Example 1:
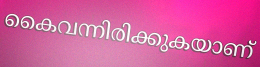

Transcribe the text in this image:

കൈവന്നിരിക്കുകയാണ്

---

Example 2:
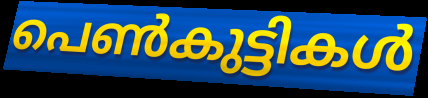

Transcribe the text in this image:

പെൺകുട്ടികൾ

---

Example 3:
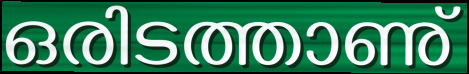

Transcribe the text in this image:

ഒരിടത്താണു്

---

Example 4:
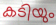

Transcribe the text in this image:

കടിയും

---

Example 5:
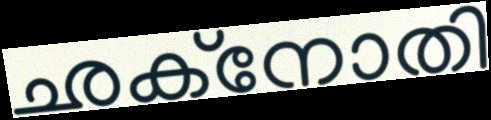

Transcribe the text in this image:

ഛക്നോതി